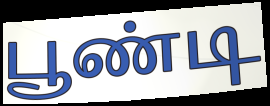
பூண்டி